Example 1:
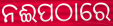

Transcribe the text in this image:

ନଈପଠାରେ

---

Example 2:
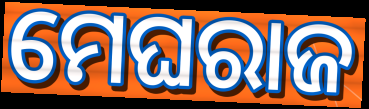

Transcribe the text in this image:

ମେଘରାଜ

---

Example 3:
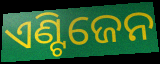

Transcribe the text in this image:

ଏଣ୍ଟିଜେନ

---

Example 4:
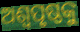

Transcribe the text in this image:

ଅଶ୍ୱପୃଷ୍ଠକୁ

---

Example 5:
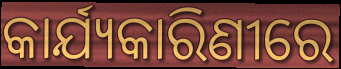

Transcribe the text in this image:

କାର୍ଯ୍ୟକାରିଣୀରେ